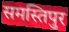
समस्तिपुर